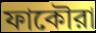
ফাকৌরা